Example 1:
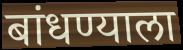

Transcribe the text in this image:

बांधण्याला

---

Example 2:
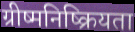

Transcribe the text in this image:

ग्रीष्मनिष्क्रियता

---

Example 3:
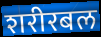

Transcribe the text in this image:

शरीरबल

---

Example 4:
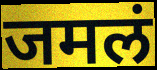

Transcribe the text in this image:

जमलं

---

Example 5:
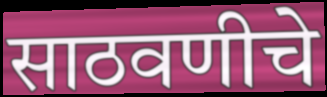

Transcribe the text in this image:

साठवणीचे